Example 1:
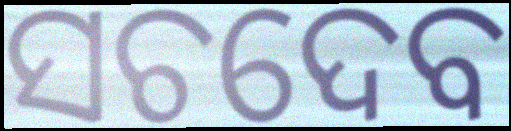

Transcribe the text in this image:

ସଚଦେବ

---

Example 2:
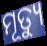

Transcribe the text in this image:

ମୂତ୍ୟୁ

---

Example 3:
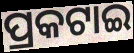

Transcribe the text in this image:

ପ୍ରକଟାଇ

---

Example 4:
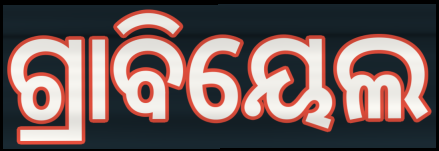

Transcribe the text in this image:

ଗ୍ରାବିୟେଲ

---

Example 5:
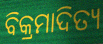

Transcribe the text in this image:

ବିକ୍ରମାଦିତ୍ୟ